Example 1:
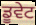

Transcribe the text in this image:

ਡੂਵੇਟ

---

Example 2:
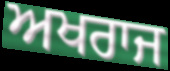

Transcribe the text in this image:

ਅਖਰਾਜ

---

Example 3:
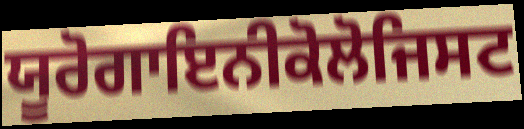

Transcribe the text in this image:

ਯੂਰੋਗਾਇਨੀਕੋਲੋਜਿਸਟ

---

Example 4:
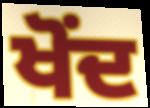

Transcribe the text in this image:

ਖੋਂਦ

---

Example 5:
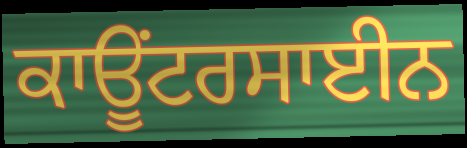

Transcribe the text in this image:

ਕਾਊਂਟਰਸਾਈਨ